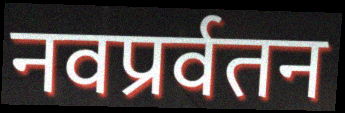
नवप्रर्वतन